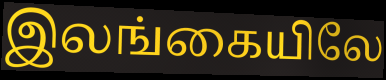
இலங்கையிலே